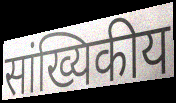
सांख्यिकीय